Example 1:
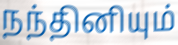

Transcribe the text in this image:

நந்தினியும்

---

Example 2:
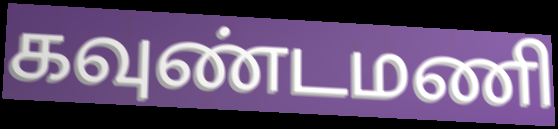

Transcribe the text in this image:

கவுண்டமணி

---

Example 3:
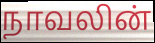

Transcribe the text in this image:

நாவலின்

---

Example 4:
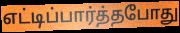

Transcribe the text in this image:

எட்டிப்பார்த்தபோது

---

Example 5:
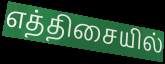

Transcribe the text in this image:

எத்திசையில்